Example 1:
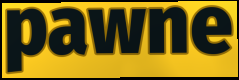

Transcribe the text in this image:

pawne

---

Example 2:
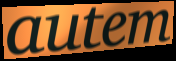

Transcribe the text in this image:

autem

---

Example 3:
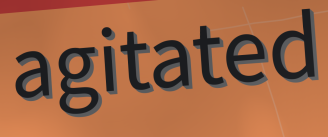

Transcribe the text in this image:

agitated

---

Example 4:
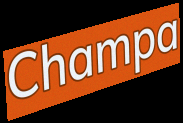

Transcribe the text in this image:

Champa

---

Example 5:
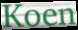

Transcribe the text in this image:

Koen